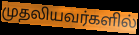
முதலியவர்களில்